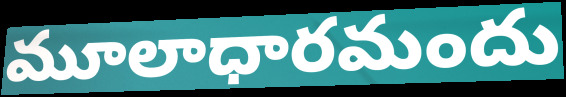
మూలాధారమందు